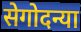
सेगोदन्या